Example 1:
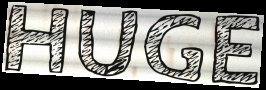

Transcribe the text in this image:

HUGE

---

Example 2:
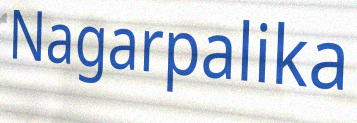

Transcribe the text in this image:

Nagarpalika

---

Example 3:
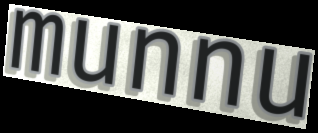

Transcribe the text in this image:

munnu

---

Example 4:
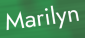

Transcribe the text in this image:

Marilyn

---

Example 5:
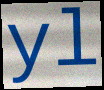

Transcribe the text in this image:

yl